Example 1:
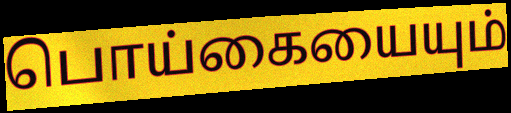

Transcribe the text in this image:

பொய்கையையும்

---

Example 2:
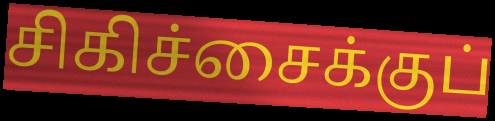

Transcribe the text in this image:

சிகிச்சைக்குப்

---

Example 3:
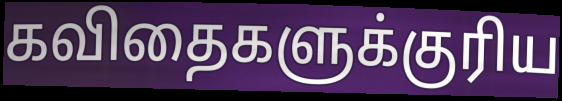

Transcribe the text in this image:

கவிதைகளுக்குரிய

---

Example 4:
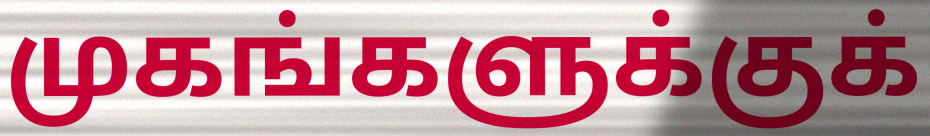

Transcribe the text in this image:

முகங்களுக்குக்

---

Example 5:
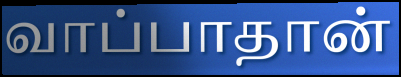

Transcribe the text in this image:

வாப்பாதான்